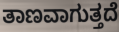
ತಾಣವಾಗುತ್ತದೆ